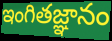
ఇంగితజ్ఞానం